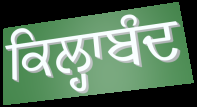
ਕਿਲ੍ਹਾਬੰਦ